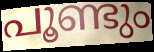
പൂണ്ടും